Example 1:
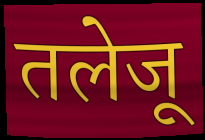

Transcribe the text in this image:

तलेजू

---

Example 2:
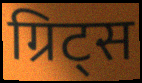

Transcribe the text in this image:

ग्रिट्स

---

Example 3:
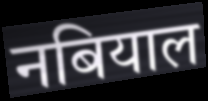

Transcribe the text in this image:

नबियाल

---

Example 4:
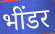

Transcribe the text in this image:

भींडर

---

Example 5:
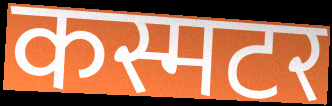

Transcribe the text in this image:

कस्मटर